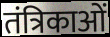
तंत्रिकाओं